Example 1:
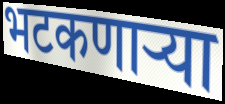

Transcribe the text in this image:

भटकणार्‍या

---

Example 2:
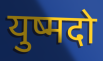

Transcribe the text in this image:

युष्मदो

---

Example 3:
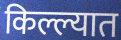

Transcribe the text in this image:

किल्ल्यात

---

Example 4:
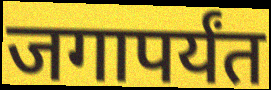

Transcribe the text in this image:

जगापर्यंत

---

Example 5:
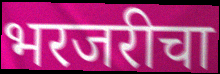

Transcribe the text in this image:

भरजरीचा